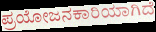
ಪ್ರಯೋಜನಕಾರಿಯಾಗಿದೆ